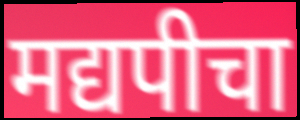
मद्यपीचा